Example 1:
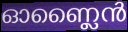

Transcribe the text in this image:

ഓണ്ലൈൻ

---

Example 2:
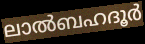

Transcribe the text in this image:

ലാൽബഹദൂർ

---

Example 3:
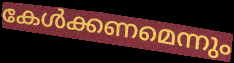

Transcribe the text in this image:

കേൾക്കണമെന്നും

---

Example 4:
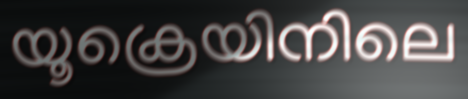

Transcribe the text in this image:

യൂക്രെയിനിലെ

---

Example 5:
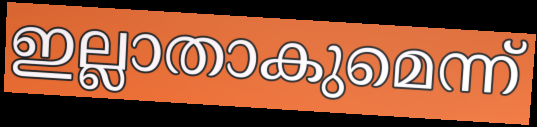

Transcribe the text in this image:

ഇല്ലാതാകുമെന്ന്